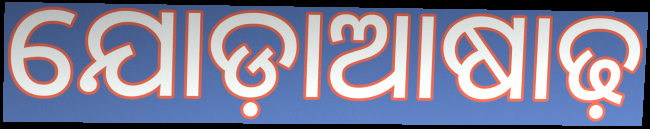
ଯୋଡ଼ାଆଷାଢ଼